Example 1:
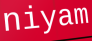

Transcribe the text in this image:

niyam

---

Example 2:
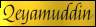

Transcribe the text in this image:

Qeyamuddin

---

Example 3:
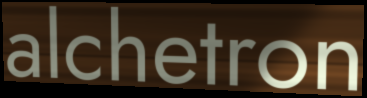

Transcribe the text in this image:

alchetron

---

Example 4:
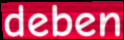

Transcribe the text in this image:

deben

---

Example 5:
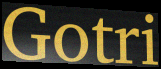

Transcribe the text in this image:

Gotri